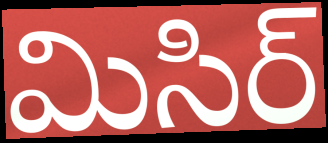
మిసిర్